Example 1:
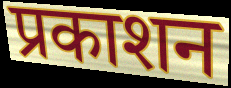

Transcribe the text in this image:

प्रकाशन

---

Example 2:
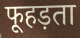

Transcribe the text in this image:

फूहड़ता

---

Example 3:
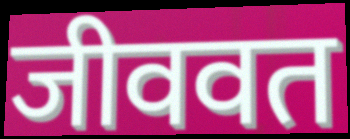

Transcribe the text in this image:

जीववत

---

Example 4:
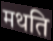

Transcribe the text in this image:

मथति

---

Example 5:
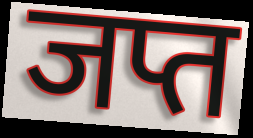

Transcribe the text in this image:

जप्त